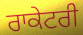
ਰਾਕੇਟਰੀ